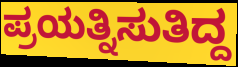
ಪ್ರಯತ್ನಿಸುತಿದ್ದ